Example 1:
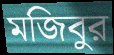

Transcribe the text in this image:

মজিবুর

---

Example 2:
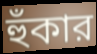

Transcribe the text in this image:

হুঁকার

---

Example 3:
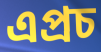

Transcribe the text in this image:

এপ্রচ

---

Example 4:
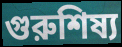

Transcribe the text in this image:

গুরুশিষ্য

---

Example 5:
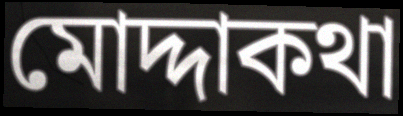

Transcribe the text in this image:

মোদ্দাকথা